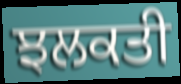
ਝਲਕਤੀ